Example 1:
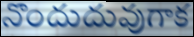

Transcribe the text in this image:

నొందుదువుగాక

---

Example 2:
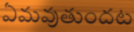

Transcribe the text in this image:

ఏమవుతుందట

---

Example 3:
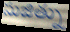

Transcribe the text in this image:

సుజిత్ను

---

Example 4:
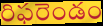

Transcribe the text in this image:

రిఫరెండం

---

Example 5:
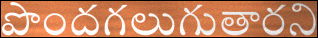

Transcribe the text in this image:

పొందగలుగుతారని